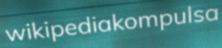
wikipediakompulsa